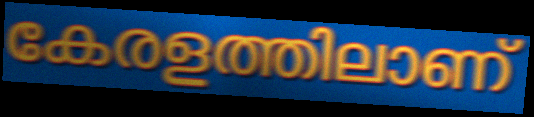
കേരളത്തിലാണ്